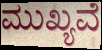
ಮುಖ್ಯವೆ